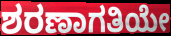
ಶರಣಾಗತಿಯೇ